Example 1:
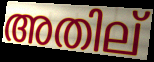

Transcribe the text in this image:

അതില്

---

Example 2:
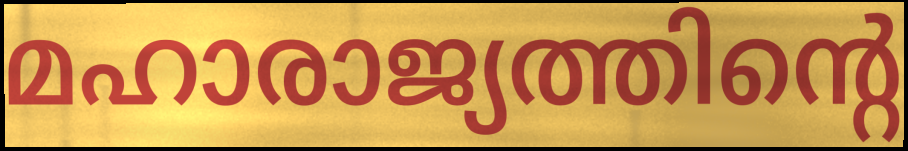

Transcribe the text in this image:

മഹാരാജ്യത്തിന്റെ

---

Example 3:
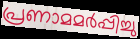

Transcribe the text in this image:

പ്രണാമമർപ്പിച്ചു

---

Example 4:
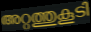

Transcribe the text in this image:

അറ്റത്തുകൂടി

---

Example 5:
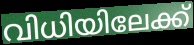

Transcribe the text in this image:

വിധിയിലേക്ക്